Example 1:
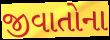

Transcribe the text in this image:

જીવાતોના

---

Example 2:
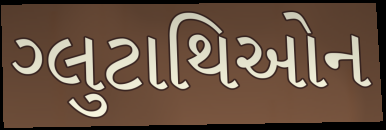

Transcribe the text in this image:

ગ્લુટાથિઓન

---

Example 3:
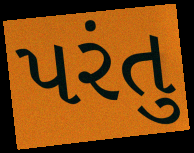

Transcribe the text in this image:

પરંતુ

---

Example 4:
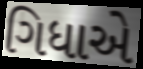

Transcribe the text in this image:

ગિધાએ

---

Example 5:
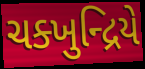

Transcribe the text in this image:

ચક્ખુન્દ્રિયે